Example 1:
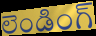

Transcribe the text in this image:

లెండింగ్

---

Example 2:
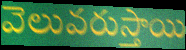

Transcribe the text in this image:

వెలువరుస్తాయి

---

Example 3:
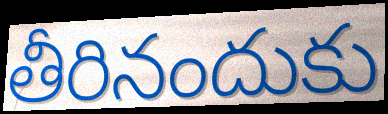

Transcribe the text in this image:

తీరినందుకు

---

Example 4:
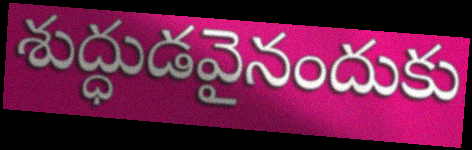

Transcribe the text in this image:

శుద్ధుడవైనందుకు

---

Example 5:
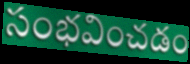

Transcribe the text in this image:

సంభవించడం